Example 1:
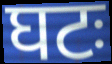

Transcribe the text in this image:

घटः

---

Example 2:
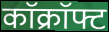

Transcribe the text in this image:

कॉक्रॉफ्ट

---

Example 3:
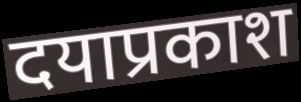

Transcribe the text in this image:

दयाप्रकाश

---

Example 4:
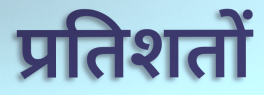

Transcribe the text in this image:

प्रतिशतों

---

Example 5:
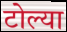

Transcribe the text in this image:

टोल्या